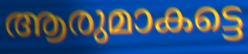
ആരുമാകട്ടെ